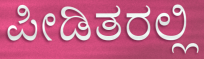
ಪೀಡಿತರಲ್ಲಿ